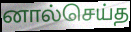
னால்செய்த